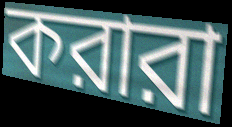
করারা